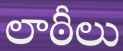
లాఠీలు